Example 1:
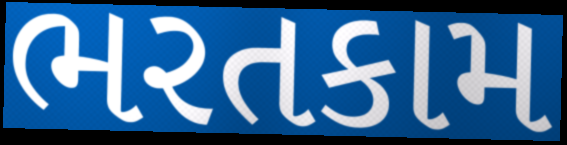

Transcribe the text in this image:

ભરતકામ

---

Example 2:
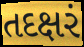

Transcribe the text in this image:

તદક્ષરં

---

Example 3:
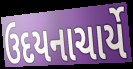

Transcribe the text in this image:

ઉદયનાચાર્યે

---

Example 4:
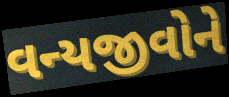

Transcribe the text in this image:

વન્યજીવોને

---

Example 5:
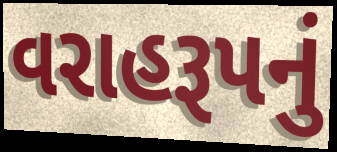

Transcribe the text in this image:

વરાહરૂપનું